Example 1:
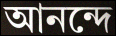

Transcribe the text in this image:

আনন্দে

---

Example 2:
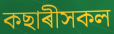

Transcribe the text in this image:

কছাৰীসকল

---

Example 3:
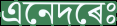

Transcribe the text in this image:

এনেদৰেঃ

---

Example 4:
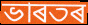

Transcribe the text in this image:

ভাৰতৰ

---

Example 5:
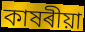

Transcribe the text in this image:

কাষৰীয়া